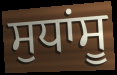
ਸੁਧਾਂਸੂ